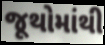
જૂથોમાંથી